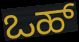
ಒಹ್